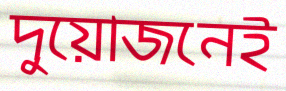
দুয়োজনেই